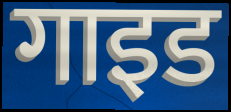
गाइड